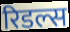
रिडल्स